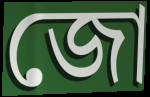
জো